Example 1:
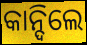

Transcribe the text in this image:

କାନ୍ଦିଲେ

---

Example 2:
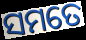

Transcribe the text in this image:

ସମତେ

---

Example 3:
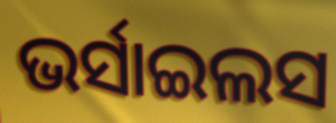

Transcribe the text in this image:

ଭର୍ସାଇଲସ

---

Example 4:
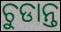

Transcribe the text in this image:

ଚୁଡାନ୍ତ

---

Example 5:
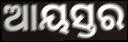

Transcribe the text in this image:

ଆୟସ୍ତର